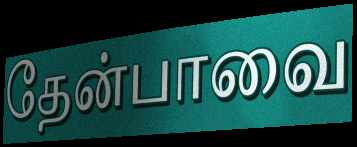
தேன்பாவை